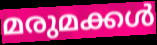
മരുമക്കൾ